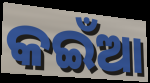
କଇଁଆ